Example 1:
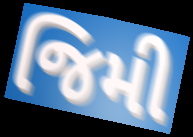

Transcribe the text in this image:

જિમી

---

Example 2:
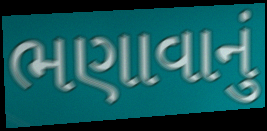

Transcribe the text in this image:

ભણાવાનું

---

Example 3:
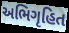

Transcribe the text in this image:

અભિગૃહિત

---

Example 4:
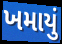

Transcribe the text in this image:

ખમાયું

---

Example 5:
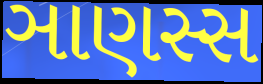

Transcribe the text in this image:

ઞાણસ્સ